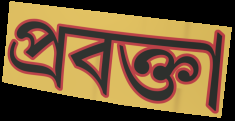
প্রবক্তা